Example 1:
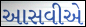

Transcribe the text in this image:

આસવીએ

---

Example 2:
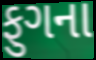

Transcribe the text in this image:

ફુગના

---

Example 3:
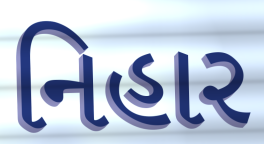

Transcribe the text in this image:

નિહાર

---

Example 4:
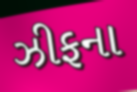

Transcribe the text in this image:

ઝીફના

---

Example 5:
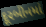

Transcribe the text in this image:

દૂરબીનમાં